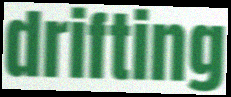
drifting